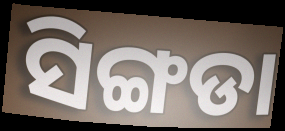
ସିଙ୍ଗଡା